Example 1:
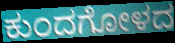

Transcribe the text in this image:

ಕುಂದಗೋಳದ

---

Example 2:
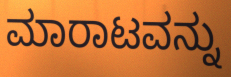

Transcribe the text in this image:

ಮಾರಾಟವನ್ನು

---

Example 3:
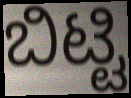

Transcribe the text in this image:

ಬಿಟ್ಟಿ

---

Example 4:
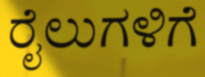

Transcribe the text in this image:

ರೈಲುಗಳಿಗೆ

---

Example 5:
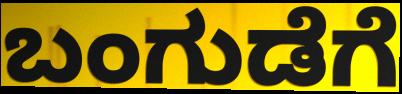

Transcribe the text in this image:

ಬಂಗುಡೆಗೆ